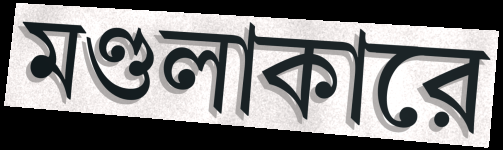
মণ্ডলাকারে